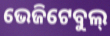
ଭେଜିଟେବୁଲ୍